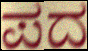
ಪದ